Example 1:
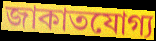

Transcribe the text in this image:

জাকাতযোগ্য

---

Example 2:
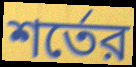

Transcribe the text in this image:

শর্তের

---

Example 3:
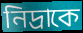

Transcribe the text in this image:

নিদ্রাকে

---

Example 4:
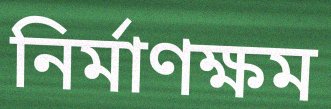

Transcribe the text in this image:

নির্মাণক্ষম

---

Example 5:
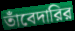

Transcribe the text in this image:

তাঁবেদারির